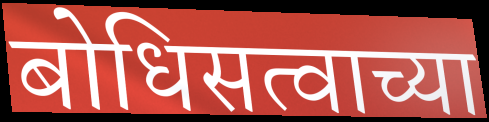
बोधिसत्वाच्या